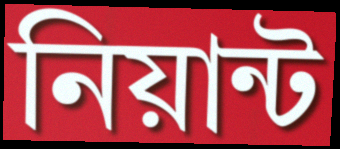
নিয়ান্ট